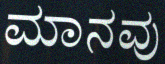
ಮಾನವು